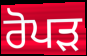
ਰੋਪੜ